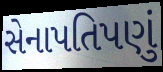
સેનાપતિપણું